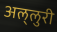
अल्लुरी